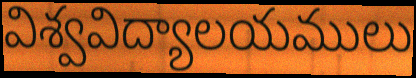
విశ్వవిద్యాలయములు